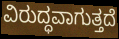
ವಿರುದ್ಧವಾಗುತ್ತದೆ